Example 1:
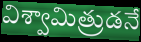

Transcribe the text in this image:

విశ్వామిత్రుడనే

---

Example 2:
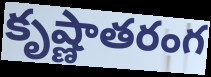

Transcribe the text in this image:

కృష్ణాతరంగ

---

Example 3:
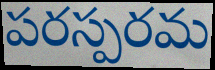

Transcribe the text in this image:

పరస్పరమ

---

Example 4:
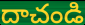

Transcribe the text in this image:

దాచండి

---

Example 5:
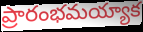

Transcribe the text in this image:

ప్రారంభమయ్యాక